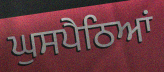
ਘੁਸਪੈਠਿਆਂ